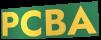
PCBA